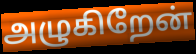
அழுகிறேன்